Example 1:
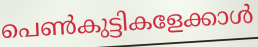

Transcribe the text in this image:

പെൺകുട്ടികളേക്കാൾ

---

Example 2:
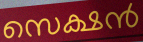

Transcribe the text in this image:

സെക്ഷൻ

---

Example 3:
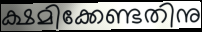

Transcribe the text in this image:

ക്ഷമിക്കേണ്ടതിനു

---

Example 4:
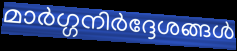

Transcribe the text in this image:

മാർഗ്ഗനിർദ്ദേശങ്ങൾ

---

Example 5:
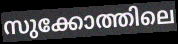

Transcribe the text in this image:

സുക്കോത്തിലെ